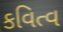
કવિત્વ